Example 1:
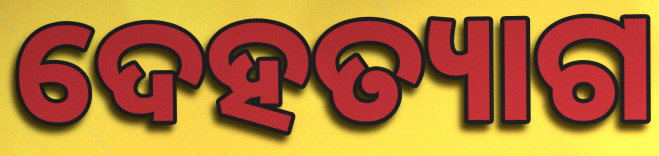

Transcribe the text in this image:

ଦେହତ୍ୟାଗ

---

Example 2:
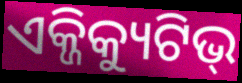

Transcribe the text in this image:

ଏକ୍ଜିକ୍ୟୁଟିଭ୍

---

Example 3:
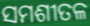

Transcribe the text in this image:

ସମଶୀତଳ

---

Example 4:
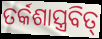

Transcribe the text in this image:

ତର୍କଶାସ୍ତ୍ରବିତ୍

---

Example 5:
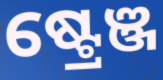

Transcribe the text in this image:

ଷ୍ଟ୍ରେଞ୍ଜ